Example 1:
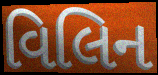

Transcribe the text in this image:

વિલિન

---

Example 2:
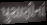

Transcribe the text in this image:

પુરાણીનાં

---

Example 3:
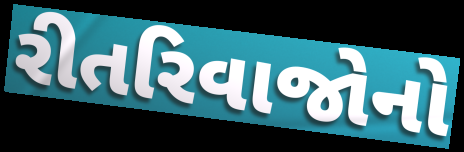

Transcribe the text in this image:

રીતરિવાજોનો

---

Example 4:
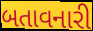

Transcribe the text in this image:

બતાવનારી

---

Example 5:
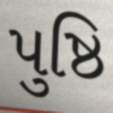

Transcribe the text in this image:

પુષ્ઠિ